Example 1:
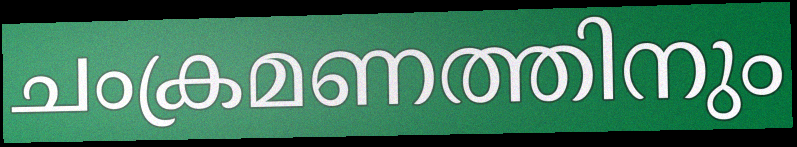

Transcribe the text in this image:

ചംക്രമണത്തിനും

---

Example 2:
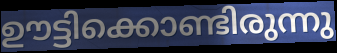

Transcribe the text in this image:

ഊട്ടിക്കൊണ്ടിരുന്നു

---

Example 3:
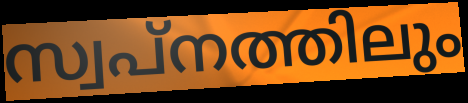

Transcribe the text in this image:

സ്വപ്നത്തിലും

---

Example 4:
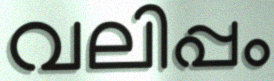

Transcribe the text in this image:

വലിപ്പം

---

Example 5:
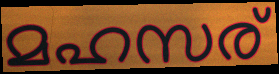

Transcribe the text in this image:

മഹസര്